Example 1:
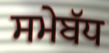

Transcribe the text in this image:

ਸਮੇਬੱਧ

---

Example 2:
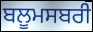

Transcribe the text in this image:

ਬਲੂਮਸਬਰੀ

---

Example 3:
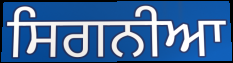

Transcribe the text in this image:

ਸਿਗਨੀਆ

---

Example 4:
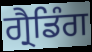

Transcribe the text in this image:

ਗ੍ਰੈਡਿੰਗ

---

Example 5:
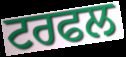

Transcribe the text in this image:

ਟਰਫਲ